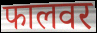
फालवर